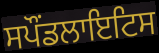
ਸਪੌਂਡਲਾਇਟਿਸ